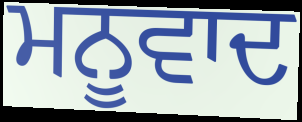
ਮਨੂਵਾਦ